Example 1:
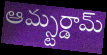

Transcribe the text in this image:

ఆమ్స్టర్డామ్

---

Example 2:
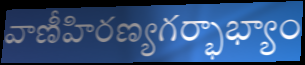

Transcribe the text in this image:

వాణీహిరణ్యగర్భాభ్యాం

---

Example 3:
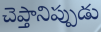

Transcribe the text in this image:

చెప్తానిప్పుడు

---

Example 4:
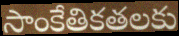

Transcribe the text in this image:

సాంకేతికతలకు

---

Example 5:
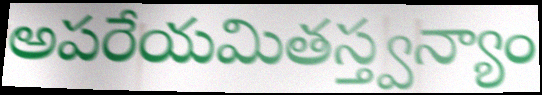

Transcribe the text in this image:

అపరేయమితస్త్వన్యాం